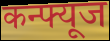
कन्फ्यूज